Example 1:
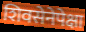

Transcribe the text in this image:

शिवसेनेपेक्षा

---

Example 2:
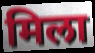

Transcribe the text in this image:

मिला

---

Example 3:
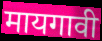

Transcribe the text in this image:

मायगावी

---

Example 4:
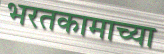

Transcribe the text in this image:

भरतकामाच्या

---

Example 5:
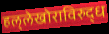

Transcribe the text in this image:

हल्लेखोराविरुद्ध